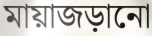
মায়াজড়ানো